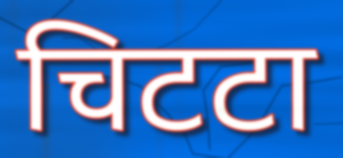
चिटटा